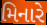
મિનારે